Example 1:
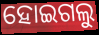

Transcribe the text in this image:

ହୋଇଗଲୁ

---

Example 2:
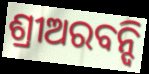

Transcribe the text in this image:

ଶ୍ରୀଅରବନ୍ଦି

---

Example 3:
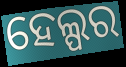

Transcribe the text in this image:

ହେଲ୍ପର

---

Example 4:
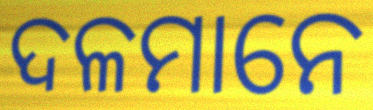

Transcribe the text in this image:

ଦଳମାନେ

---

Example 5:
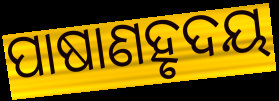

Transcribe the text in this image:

ପାଷାଣହୃଦୟ